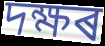
দক্ষৰ